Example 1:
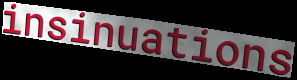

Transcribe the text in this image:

insinuations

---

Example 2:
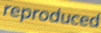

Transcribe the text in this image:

reproduced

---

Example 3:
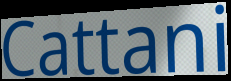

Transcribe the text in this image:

Cattani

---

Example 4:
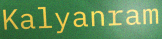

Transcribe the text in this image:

Kalyanram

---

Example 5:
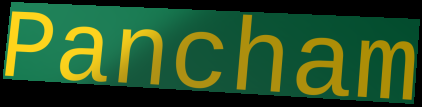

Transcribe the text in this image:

Pancham